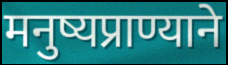
मनुष्यप्राण्याने